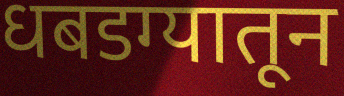
धबडग्यातून